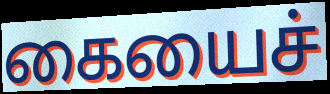
கையைச்